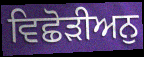
ਵਿਛੋੜੀਅਨੁ